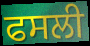
ਫਸਲੀ